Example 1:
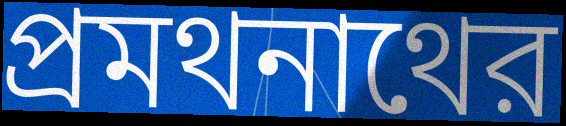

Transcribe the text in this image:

প্রমথনাথের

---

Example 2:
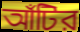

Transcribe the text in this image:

আঁটির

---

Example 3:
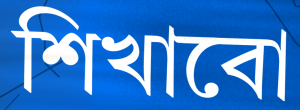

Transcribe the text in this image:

শিখাবো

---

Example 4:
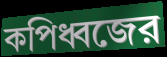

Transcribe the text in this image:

কপিধ্বজের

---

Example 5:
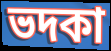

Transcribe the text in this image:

ভদকা